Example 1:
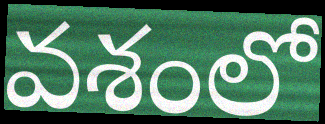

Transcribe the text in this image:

వశంలో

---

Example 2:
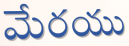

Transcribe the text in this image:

మేరయు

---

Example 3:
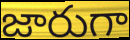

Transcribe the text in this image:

జారుగా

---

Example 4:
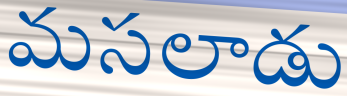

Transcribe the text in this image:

మసలాడు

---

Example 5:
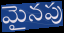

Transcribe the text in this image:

మైనపు